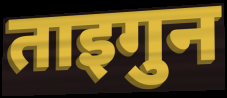
ताइगुन